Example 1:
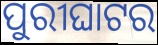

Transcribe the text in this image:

ପୁରୀଘାଟର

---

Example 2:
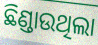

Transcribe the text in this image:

ଛିଣ୍ଡାଉଥିଲା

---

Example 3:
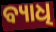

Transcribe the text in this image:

ବ୍ୟାଧି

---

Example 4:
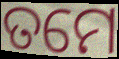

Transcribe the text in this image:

ତମେ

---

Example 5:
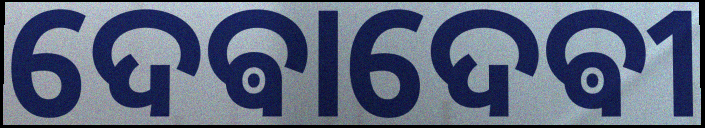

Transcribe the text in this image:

ଦେଵାଦେଵୀ